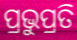
ପ୍ରଭୁପ୍ରତି